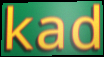
kad